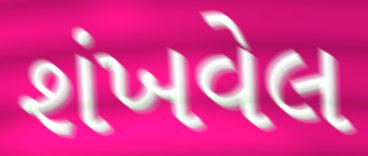
શંખવેલ